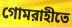
গোমরাহীতে